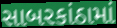
સાબરકાંઠામાં